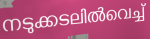
നടുക്കടലിൽവെച്ച്